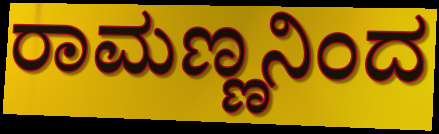
ರಾಮಣ್ಣನಿಂದ